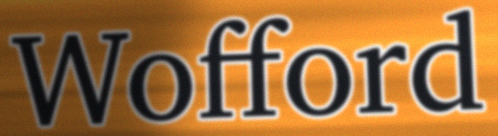
Wofford